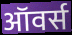
ऑवर्स